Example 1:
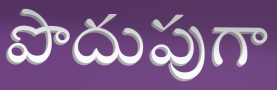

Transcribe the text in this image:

పొదుపుగా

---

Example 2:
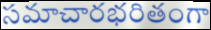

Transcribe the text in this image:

సమాచారభరితంగా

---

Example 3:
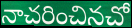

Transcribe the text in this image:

నాచరించినచో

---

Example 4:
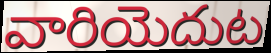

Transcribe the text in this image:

వారియెదుట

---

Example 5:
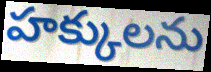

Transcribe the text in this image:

హక్కులను